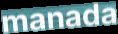
manada